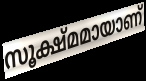
സൂക്ഷ്മമായാണ്